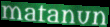
matanun